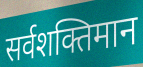
सर्वशक्तिमान